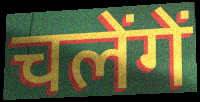
चलेंगें